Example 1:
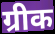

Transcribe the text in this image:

ग्रीक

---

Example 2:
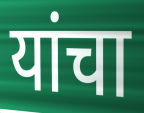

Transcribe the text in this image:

यांचा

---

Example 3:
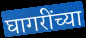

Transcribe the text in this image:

घागरींच्या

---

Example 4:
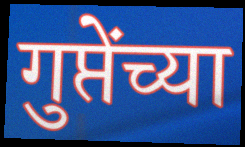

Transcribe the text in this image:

गुप्तेंच्या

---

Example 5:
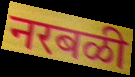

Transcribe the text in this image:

नरबळी